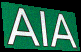
AIA